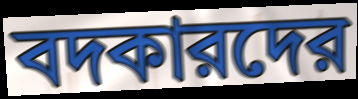
বদকারদের